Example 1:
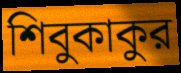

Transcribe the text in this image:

শিবুকাকুর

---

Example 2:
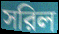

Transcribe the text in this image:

সরিল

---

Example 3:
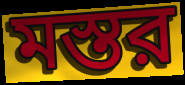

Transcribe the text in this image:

মস্তর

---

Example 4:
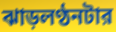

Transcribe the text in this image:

ঝাড়লণ্ঠনটার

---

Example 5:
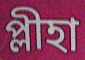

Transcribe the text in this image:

প্লীহা